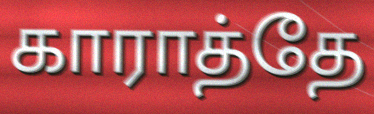
காராத்தே